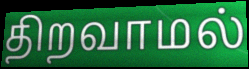
திறவாமல்